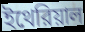
ইথেরিয়াল